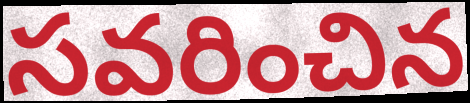
సవరించిన